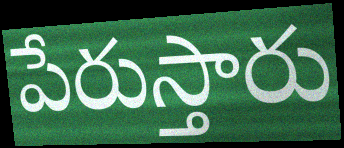
పేరుస్తారు